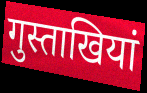
गुस्ताखियां